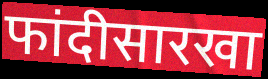
फांदीसारखा